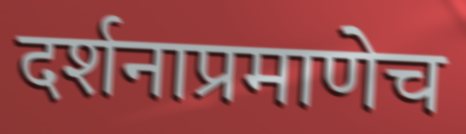
दर्शनाप्रमाणेच